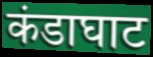
कंडाघाट